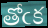
తోఁక